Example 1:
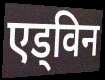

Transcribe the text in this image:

एड्विन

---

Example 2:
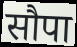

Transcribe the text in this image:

सौपा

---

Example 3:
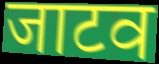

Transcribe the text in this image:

जाटव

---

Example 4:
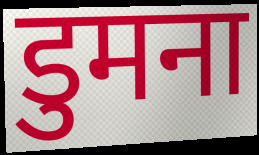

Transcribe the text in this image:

डुमना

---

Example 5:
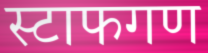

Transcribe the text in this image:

स्टाफगण